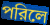
পরিলে